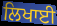
ਲਿਖਾਈ